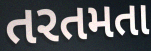
તરતમતા